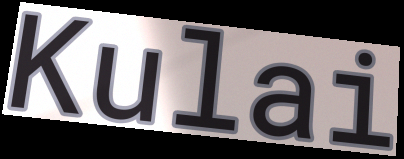
Kulai